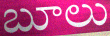
బూలు